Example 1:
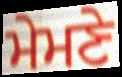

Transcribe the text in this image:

ਮੇਮਣੇ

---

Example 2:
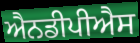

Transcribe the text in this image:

ਐਨਡੀਪੀਐਸ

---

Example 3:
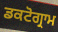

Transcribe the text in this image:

ਡਕਟੋਗ੍ਰਾਮ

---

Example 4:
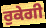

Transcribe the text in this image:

ਰੁਕੇਗੀ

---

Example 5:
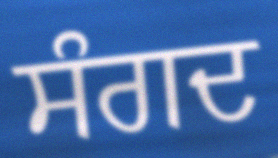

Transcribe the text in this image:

ਸੰਗਦ